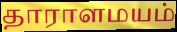
தாராளமயம்